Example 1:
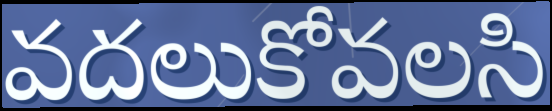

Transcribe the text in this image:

వదలుకోవలసి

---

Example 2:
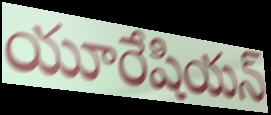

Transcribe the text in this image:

యూరేషియన్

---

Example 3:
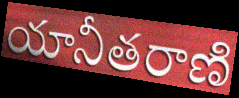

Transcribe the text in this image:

యానీతరాణి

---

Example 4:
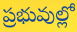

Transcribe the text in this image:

ప్రభువుల్లో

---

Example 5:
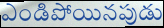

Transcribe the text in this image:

ఎండిపోయినపుడు